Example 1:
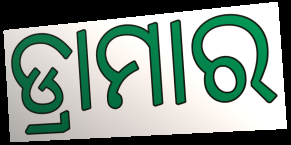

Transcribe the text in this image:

ଡ୍ରାମାର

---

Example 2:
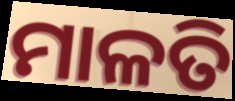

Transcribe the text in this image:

ମାଳତି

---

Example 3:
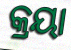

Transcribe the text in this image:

କ୍ରୟା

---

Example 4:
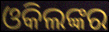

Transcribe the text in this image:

ଓକିଲଙ୍କର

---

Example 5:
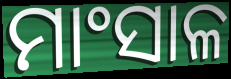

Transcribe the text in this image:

ମାଂସାଳ